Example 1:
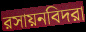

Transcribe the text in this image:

রসায়নবিদরা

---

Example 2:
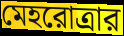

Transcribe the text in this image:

মেহরোত্রার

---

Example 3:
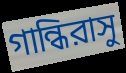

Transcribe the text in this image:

গান্ধিরাসু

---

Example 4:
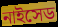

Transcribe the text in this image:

নাইসেড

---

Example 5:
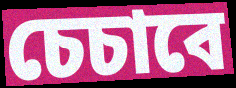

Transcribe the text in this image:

চেচাবে